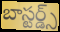
బాస్టర్డ్స్